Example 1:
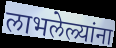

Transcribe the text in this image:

लाभलेल्यांना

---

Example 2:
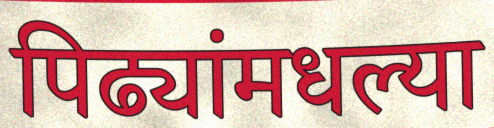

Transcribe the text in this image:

पिढ्यांमधल्या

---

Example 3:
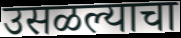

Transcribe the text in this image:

उसळल्याचा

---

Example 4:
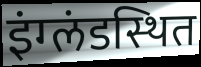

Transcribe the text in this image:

इंग्लंडस्थित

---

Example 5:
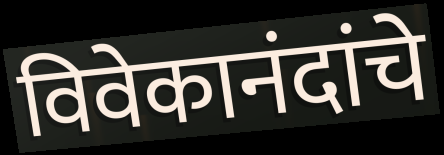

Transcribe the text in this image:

विवेकानंदांचे